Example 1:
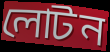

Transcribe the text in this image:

লোটন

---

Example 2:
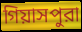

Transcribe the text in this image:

গিয়াসপুরা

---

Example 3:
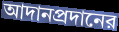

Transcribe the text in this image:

আদানপ্রদানের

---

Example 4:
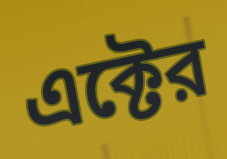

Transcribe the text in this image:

এক্টের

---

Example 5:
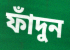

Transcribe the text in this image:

ফাঁদুন